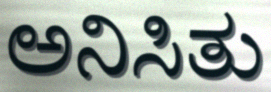
ಅನಿಸಿತು